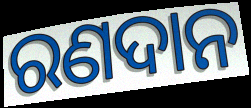
ରଣଦାନ